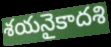
శయనైకాదశి